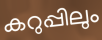
കറുപ്പിലും